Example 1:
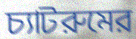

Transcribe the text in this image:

চ্যাটরুমের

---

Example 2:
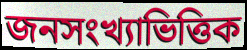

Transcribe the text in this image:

জনসংখ্যাভিত্তিক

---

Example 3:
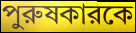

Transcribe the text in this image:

পুরুষকারকে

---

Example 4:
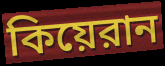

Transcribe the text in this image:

কিয়েরান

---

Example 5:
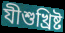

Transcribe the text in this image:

যীশুখ্রিষ্ট